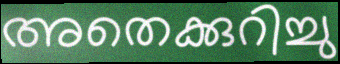
അതെക്കുറിച്ചു